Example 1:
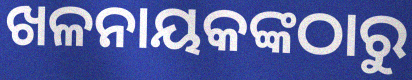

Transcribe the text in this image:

ଖଳନାୟକଙ୍କଠାରୁ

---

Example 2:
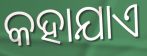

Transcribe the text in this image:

କହାଯାଏ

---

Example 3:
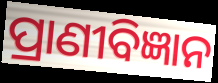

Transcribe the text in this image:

ପ୍ରାଣୀବିଜ୍ଞାନ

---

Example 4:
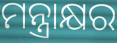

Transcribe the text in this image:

ମନ୍ତ୍ରାକ୍ଷର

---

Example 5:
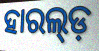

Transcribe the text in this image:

ହାରଲ୍ଡ଼